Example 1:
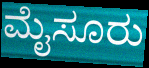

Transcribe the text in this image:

ಮೈಸೂರು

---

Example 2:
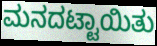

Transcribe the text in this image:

ಮನದಟ್ಟಾಯಿತು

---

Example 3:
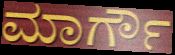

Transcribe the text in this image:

ಮಾರ್ಗೌ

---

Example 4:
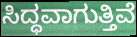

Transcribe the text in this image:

ಸಿದ್ಧವಾಗುತ್ತಿವೆ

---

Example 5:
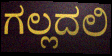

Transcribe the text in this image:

ಗಲ್ಲದಲಿ